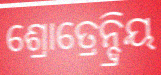
ଶ୍ରୋତ୍ରେନ୍ଦ୍ରିୟ